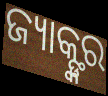
ଜ୍ୟାକ୍ଙ୍କର